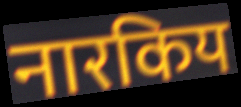
नारकिय